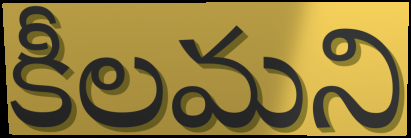
కీలమని